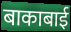
बाकाबाई